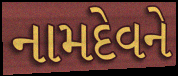
નામદેવને